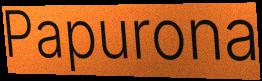
Papurona